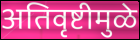
अतिवृष्टीमुळे